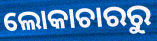
ଲୋକାଚାରରୁ